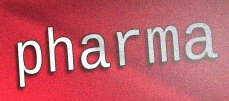
pharma